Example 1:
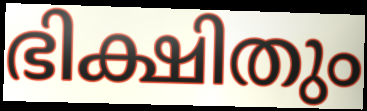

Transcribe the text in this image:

ഭിക്ഷിതും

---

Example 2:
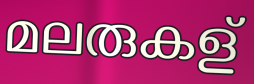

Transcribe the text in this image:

മലരുകള്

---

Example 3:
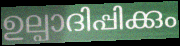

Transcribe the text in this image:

ഉല്പാദിപ്പിക്കും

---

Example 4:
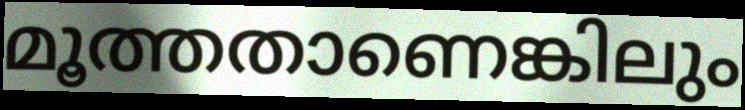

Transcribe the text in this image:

മൂത്തതാണെങ്കിലും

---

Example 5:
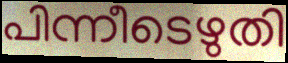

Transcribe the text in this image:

പിന്നീടെഴുതി